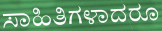
ಸಾಹಿತಿಗಳಾದರೂ